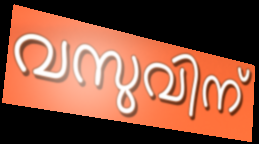
വസുവിന്